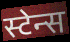
स्टेन्स